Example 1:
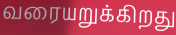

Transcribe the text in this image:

வரையறுக்கிறது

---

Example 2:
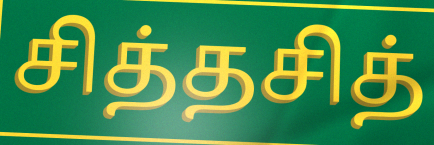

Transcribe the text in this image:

சித்தசித்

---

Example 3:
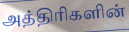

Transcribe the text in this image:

அத்திரிகளின்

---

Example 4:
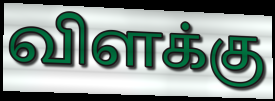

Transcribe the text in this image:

விளக்கு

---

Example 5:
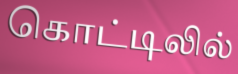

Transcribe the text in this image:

கொட்டிலில்